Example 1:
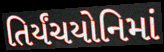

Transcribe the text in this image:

તિર્યંચયોનિમાં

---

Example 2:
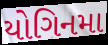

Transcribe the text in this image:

યોગિનમા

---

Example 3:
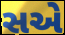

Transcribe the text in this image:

સએ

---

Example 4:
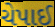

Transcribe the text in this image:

ચેપાઈ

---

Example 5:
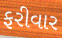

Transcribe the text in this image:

ફરીવાર